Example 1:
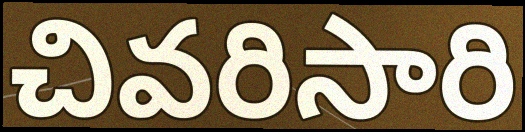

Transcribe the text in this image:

చివరిసారి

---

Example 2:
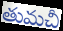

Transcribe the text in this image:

తుమచీ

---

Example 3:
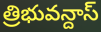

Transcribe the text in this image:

త్రిభువన్దాస్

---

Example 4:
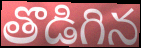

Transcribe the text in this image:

తొడిగిన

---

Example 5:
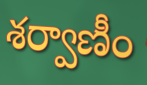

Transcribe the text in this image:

శర్వాణీం